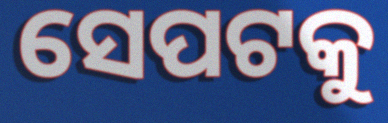
ସେପଟକୁ